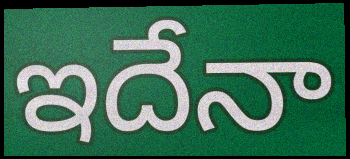
ఇదేనా